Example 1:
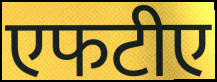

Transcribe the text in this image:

एफटीए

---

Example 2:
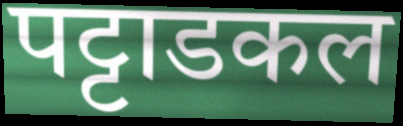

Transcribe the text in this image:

पट्टाडकल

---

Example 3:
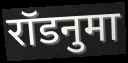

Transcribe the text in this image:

रॉडनुमा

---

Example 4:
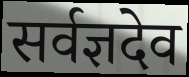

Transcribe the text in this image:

सर्वज्ञदेव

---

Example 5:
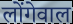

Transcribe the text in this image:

लोंगेवाल